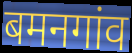
बमनगांव